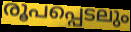
രൂപപ്പെടലും